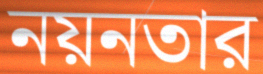
নয়নতার